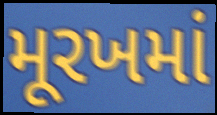
મૂરખમાં